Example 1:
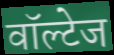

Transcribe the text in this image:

वॉल्टेज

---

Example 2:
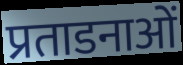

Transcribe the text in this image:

प्रताडनाओं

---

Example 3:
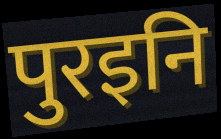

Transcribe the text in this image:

पुरइनि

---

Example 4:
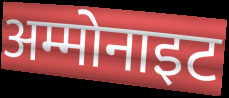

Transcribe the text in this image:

अम्मोनाइट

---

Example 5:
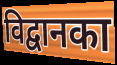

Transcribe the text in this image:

विद्वानका